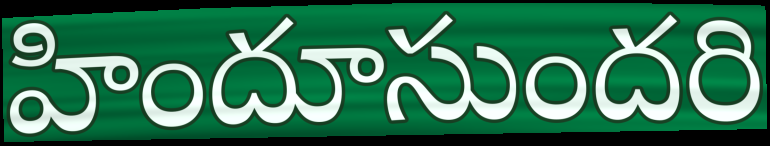
హిందూసుందరి